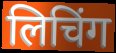
लिचिंग